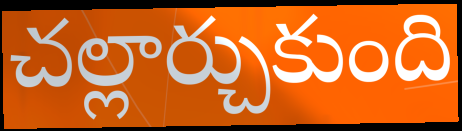
చల్లార్చుకుంది